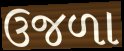
ઉજળા